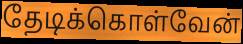
தேடிக்கொள்வேன்